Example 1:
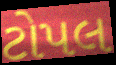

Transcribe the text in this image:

ટોપલ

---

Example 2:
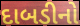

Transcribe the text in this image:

દાબડીનો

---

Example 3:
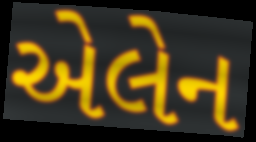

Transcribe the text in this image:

એલેન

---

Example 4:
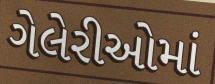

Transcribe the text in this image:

ગેલેરીઓમાં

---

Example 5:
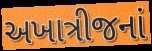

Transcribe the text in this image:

અખાત્રીજનાં